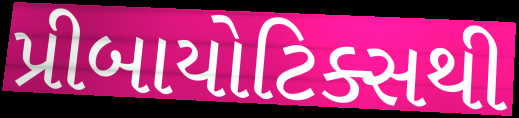
પ્રીબાયોટિક્સથી